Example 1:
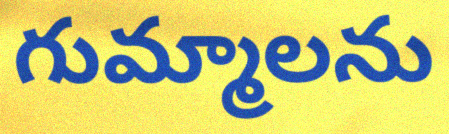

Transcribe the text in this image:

గుమ్మాలను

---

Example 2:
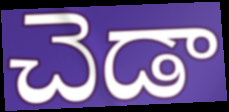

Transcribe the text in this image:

చెడా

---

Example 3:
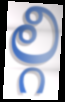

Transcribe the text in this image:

ల్గి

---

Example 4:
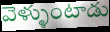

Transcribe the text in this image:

వెళ్ళుంటాడు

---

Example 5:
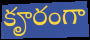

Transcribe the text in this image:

కౄరంగా